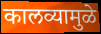
कालव्यामुळे